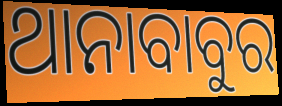
ଥାନାବାବୁର